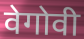
वेगोवी